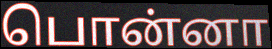
பொன்னா